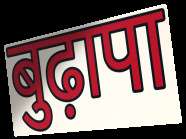
बुढ़ापा